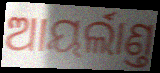
ଆୟର୍ଲାଣ୍ତ